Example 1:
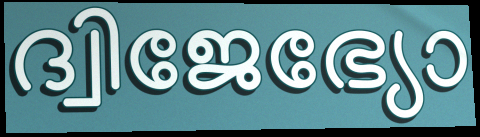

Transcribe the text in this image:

ദ്വിജേഭ്യോ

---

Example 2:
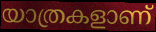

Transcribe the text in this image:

യാത്രകളാണ്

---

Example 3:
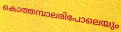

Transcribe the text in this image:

കൊത്തമ്പാലരിപോലെയും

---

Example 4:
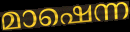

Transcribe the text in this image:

മാഷെന്ന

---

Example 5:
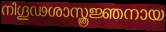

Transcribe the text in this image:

നിഗൂഢശാസ്ത്രജ്ഞനായ